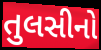
તુલસીનો